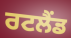
ਰਟਲੈਂਡ